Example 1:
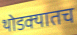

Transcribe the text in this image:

थोडक्यातच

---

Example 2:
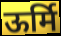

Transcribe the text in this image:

ऊर्मि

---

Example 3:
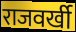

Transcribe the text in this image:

राजवर्खी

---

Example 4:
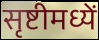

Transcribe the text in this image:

सृष्टीमध्यें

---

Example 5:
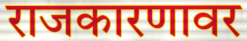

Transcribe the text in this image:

राजकारणावर